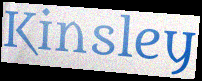
Kinsley